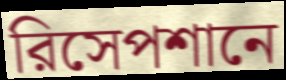
রিসেপশানে